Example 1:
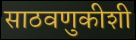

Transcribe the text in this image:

साठवणुकीशी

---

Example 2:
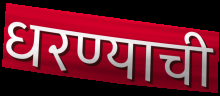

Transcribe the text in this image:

धरण्याची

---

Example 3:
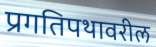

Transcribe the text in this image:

प्रगतिपथावरील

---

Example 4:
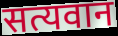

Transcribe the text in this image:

सत्यवान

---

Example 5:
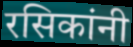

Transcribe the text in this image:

रसिकांनी